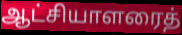
ஆட்சியாளரைத்